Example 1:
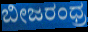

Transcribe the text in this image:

ಬೀಜರಂಧ್ರ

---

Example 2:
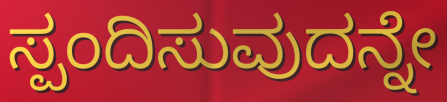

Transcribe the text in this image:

ಸ್ಪಂದಿಸುವುದನ್ನೇ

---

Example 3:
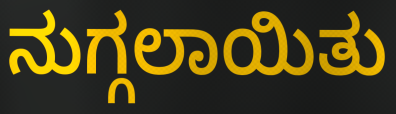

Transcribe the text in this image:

ನುಗ್ಗಲಾಯಿತು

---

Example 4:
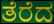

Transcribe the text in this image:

ತೆರೆದ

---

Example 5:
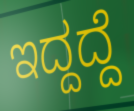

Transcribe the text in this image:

ಇದ್ದದ್ದೆ